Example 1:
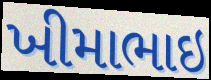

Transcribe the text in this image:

ખીમાભાઇ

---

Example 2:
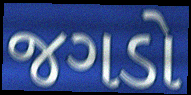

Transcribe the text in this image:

જગડો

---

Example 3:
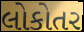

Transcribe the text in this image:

લોકોતર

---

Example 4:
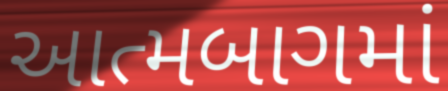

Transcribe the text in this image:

આત્મબાગમાં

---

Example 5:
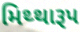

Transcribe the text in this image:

મિથ્થારૂપ